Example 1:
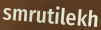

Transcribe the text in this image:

smrutilekh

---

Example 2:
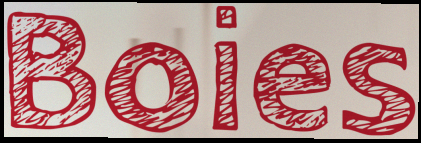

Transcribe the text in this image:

Boies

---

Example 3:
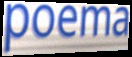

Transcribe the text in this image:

poema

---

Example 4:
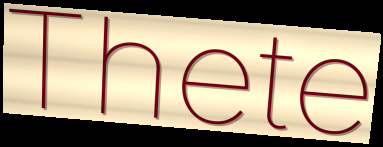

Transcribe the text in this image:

Thete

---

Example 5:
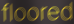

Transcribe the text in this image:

floored